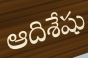
ఆదిశేషు